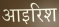
आइरिश